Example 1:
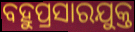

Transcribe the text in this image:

ବହୁପ୍ରସାରଯୁକ୍ତ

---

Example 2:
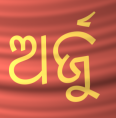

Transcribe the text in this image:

ଅର୍ଜୁ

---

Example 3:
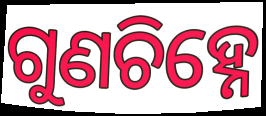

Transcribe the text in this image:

ଗୁଣଚିହ୍ନେ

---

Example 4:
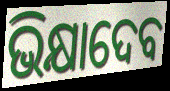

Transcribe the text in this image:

ଭିକ୍ଷାଦେବ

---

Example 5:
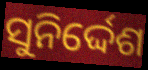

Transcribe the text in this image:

ସୁନିର୍ଦ୍ଦେଶ